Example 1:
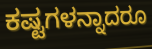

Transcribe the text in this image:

ಕಷ್ಟಗಳನ್ನಾದರೂ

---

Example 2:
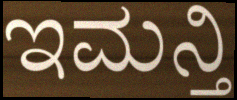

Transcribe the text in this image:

ಇಮನ್ತಿ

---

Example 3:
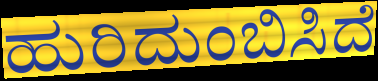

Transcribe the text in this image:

ಹುರಿದುಂಬಿಸಿದೆ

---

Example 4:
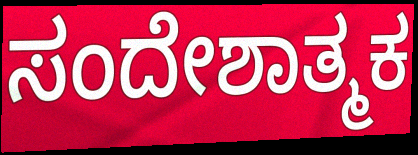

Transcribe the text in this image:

ಸಂದೇಶಾತ್ಮಕ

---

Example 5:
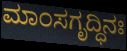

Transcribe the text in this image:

ಮಾಂಸಗೃದ್ಧಿನಃ